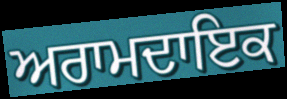
ਅਰਾਮਦਾਇਕ